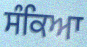
ਸੰਕਿਆ